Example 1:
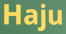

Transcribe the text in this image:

Haju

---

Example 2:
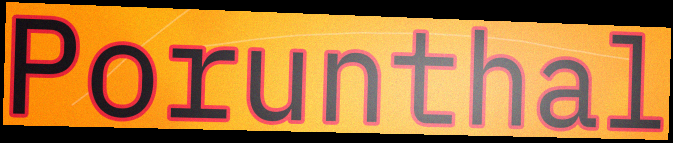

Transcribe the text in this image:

Porunthal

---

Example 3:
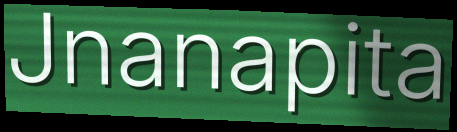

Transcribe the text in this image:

Jnanapita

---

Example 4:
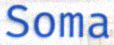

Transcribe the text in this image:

Soma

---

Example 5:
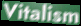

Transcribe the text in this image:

Vitalism